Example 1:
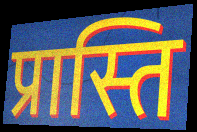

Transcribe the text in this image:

प्रास्ति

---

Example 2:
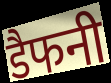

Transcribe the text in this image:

डैफनी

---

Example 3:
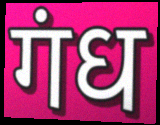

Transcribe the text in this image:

गंध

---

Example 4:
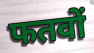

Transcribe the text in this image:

फतवों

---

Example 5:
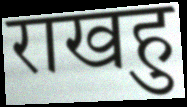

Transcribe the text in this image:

राखहु